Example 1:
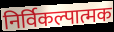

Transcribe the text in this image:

निर्विकल्पात्मक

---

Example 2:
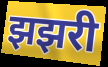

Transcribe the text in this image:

झझरी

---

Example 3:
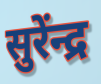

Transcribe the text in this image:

सुरेंन्द्र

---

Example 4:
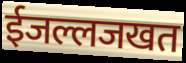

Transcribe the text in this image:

ईजल्लजखत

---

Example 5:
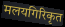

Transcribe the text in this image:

मलयगिरिकृत